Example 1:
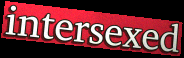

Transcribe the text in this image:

intersexed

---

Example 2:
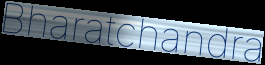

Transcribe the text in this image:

Bharatchandra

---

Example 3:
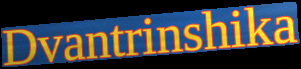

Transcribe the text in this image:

Dvantrinshika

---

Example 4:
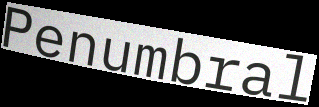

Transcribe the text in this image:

Penumbral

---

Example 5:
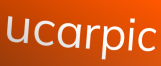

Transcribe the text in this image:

ucarpic